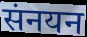
संनयन